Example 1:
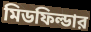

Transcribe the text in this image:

মিডফিল্ডার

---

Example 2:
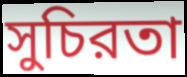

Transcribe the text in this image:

সুচিরতা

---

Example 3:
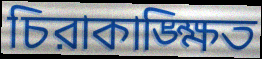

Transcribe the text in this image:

চিরাকাঙ্ক্ষিত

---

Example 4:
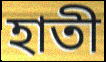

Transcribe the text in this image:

হাতী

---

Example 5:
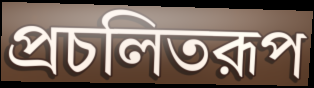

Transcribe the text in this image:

প্রচলিতরূপ